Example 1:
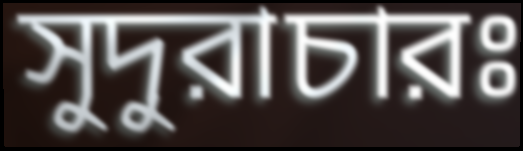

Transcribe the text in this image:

সুদুরাচারঃ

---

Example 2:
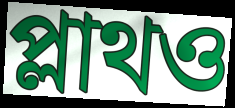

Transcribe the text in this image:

প্লাথও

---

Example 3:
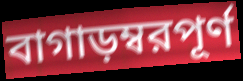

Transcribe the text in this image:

বাগাড়ম্বরপূর্ণ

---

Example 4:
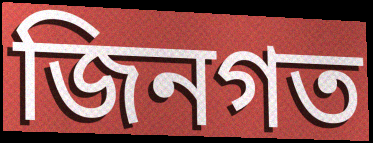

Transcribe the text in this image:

জিনগত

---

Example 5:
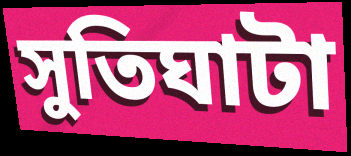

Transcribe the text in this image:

সুতিঘাটা